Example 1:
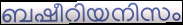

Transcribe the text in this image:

ബഷീറിയനിസം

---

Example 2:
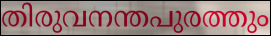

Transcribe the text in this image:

തിരുവനന്തപുരത്തും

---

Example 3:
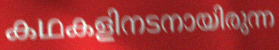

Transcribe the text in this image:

കഥകളിനടനായിരുന്ന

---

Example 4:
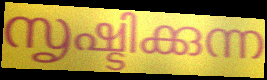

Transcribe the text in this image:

സൃഷ്ടിക്കുന്ന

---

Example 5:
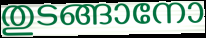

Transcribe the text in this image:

തുടങ്ങാനോ